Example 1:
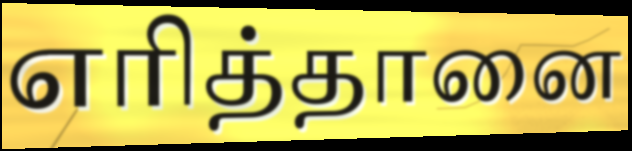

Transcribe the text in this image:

எரித்தானை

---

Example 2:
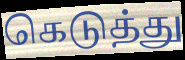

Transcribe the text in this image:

கெடுத்து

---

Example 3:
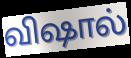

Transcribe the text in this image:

விஷால்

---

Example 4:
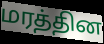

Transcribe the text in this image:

மரத்தின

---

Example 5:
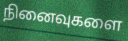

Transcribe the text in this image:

நினைவுகளை